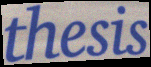
thesis